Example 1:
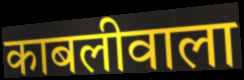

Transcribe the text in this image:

काबलीवाला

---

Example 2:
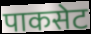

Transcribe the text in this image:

पाकसेट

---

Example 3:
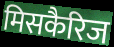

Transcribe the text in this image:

मिसकैरिज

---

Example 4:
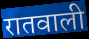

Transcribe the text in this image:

रातवाली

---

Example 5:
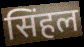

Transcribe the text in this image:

सिंहल